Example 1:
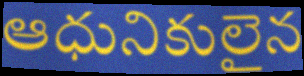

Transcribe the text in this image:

ఆధునికులైన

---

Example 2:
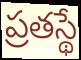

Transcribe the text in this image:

ప్రతస్థే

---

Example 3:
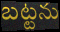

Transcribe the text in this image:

బట్టను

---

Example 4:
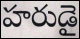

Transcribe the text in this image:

హరుడై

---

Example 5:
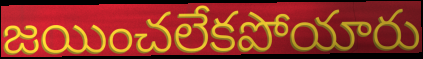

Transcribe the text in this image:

జయించలేకపోయారు